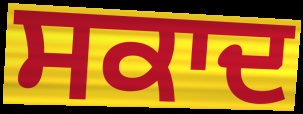
ਸਕਾਦ